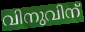
വിനുവിന്